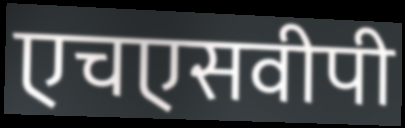
एचएसवीपी